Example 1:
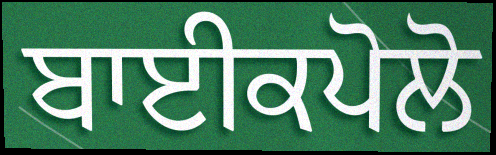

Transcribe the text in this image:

ਬਾਈਕਪੋਲੋ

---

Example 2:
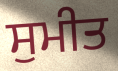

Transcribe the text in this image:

ਸੁਮੀਤ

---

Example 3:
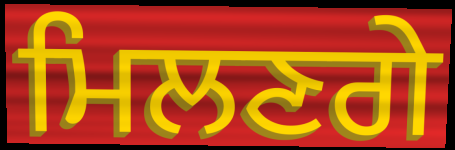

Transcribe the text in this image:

ਮਿਲਣਗੇ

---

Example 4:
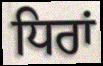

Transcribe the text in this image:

ਧਿਰਾਂ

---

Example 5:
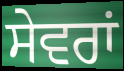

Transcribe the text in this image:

ਸੇਵਰਾਂ